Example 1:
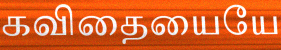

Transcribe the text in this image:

கவிதையையே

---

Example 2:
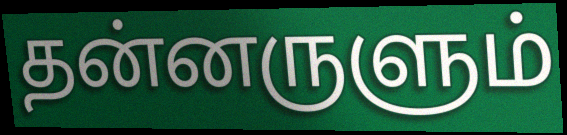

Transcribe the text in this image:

தன்னருளும்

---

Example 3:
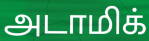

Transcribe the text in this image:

அடாமிக்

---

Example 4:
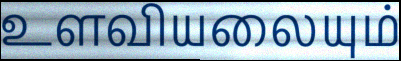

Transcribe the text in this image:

உளவியலையும்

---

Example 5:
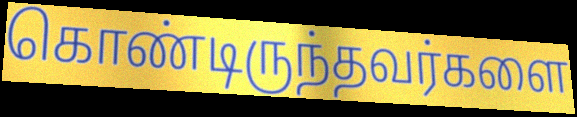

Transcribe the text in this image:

கொண்டிருந்தவர்களை